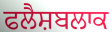
ਫਲੈਸ਼ਬਲਾਕ